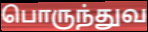
பொருந்துவ